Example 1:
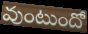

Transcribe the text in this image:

వుంటుందో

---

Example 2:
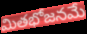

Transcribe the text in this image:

మితభోజనమే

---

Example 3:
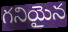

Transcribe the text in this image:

గనియైన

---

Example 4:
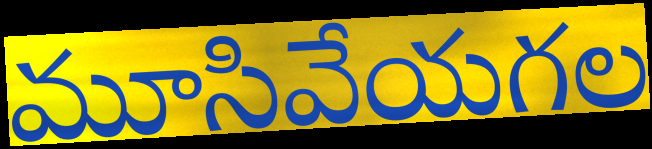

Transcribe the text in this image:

మూసివేయగల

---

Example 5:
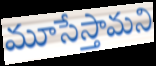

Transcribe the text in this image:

మూసేస్తామని